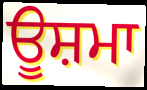
ਊਸ਼ਮਾ